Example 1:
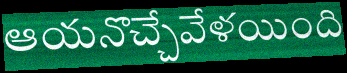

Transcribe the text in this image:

ఆయనొచ్చేవేళయింది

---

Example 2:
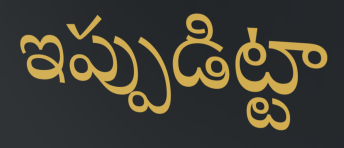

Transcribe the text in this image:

ఇప్పుడిట్టా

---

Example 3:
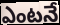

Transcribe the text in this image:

ఎంటనే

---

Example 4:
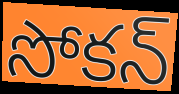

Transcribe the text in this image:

సోకన్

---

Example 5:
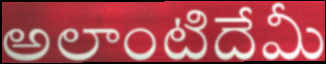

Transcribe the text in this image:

అలాంటిదేమీ